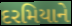
દરમિયાને